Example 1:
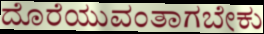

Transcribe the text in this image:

ದೊರೆಯುವಂತಾಗಬೇಕು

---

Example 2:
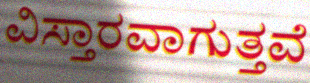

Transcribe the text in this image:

ವಿಸ್ತಾರವಾಗುತ್ತವೆ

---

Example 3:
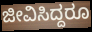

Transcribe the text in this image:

ಜೀವಿಸಿದ್ದರೂ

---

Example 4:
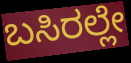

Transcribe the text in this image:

ಬಸಿರಲ್ಲೇ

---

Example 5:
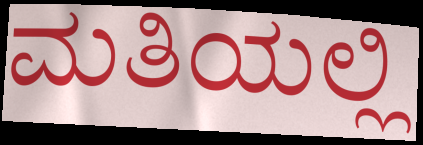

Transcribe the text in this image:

ಮತಿಯಲ್ಲಿ